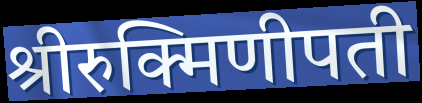
श्रीरुक्मिणीपती